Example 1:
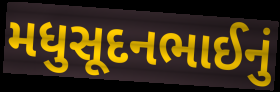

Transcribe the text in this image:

મધુસૂદનભાઈનું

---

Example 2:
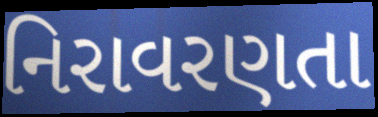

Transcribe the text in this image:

નિરાવરણતા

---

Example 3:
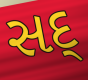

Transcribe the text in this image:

સદ્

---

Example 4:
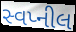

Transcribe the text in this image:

સ્વપ્નીલ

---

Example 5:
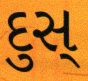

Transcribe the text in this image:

દુસ્